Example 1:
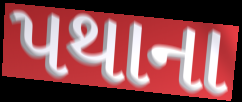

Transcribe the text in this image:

પથાના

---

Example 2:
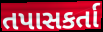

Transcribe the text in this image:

તપાસકર્તા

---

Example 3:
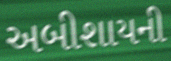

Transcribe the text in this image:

અબીશાયની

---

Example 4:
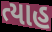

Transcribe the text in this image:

ત્યાહ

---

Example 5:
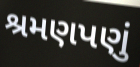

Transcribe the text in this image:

શ્રમણપણું